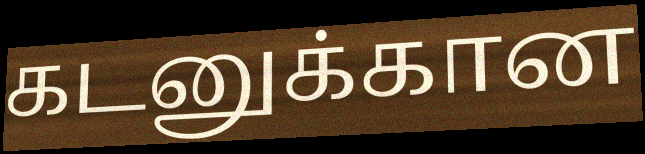
கடனுக்கான